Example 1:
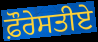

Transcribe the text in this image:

ਫ਼ੌਰੇਸਤੀਏ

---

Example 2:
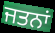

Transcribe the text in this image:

ਜਤਨਾਂ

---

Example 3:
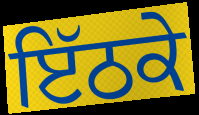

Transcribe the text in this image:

ਇੱਠਕੇ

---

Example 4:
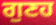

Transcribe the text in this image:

ਗੁਣਹ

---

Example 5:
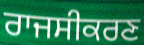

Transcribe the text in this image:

ਰਾਜਸੀਕਰਣ